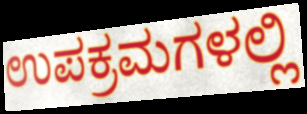
ಉಪಕ್ರಮಗಳಲ್ಲಿ